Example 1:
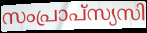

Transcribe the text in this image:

സംപ്രാപ്സ്യസി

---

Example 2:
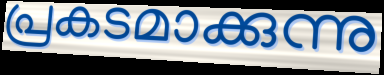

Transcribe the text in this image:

പ്രകടമാക്കുന്നു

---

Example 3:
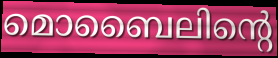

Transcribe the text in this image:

മൊബൈലിന്റെ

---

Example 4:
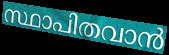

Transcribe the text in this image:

സ്ഥാപിതവാൻ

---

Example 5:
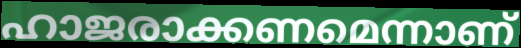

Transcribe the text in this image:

ഹാജരാക്കണമെന്നാണ്